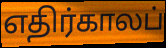
எதிர்காலப்